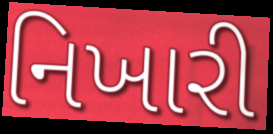
નિખારી